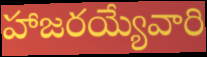
హాజరయ్యేవారి